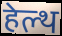
हेल्‍थ